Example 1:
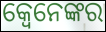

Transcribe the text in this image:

କ୍ବେନେଙ୍କର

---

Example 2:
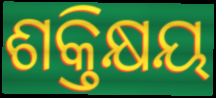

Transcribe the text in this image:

ଶକ୍ତିକ୍ଷୟ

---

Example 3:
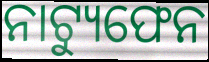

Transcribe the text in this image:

ନାଟ୍ୟୁଫେନ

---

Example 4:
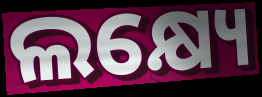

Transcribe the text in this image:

ଲକ୍ଷ୍ୟେ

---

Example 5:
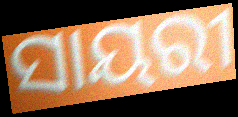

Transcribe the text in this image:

ସାୟରୀ